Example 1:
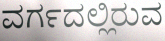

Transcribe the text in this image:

ವರ್ಗದಲ್ಲಿರುವ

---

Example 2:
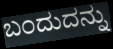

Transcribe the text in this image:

ಬಂದುದನ್ನು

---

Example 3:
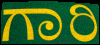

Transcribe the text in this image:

ಗಾರಿ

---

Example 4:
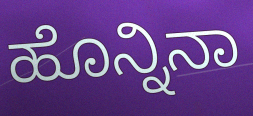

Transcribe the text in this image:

ಹೊನ್ನಿನಾ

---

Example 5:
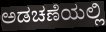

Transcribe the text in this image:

ಅಡಚಣೆಯಲ್ಲಿ